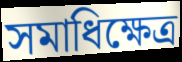
সমাধিক্ষেত্ৰ